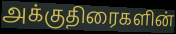
அக்குதிரைகளின்